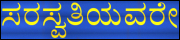
ಸರಸ್ವತಿಯವರೇ